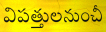
విపత్తులనుంచీ